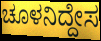
ಚೂಳನಿದ್ದೇಸ